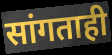
सांगताही